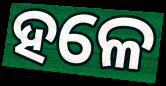
ହଳେ